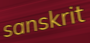
sanskrit